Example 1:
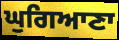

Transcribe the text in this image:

ਘੁਗਿਆਣਾ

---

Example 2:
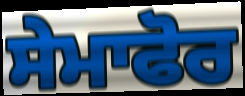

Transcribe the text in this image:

ਸੇਮਾਫੋਰ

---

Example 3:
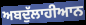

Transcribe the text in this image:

ਅਬਦੁੱਲਾਹੀਆਨ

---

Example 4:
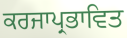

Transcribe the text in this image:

ਕਰਜਾਪ੍ਰਭਾਵਿਤ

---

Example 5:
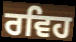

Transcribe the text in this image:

ਰਵਿਹ